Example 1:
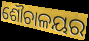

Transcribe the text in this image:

ଶୌଚାଳୟର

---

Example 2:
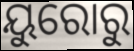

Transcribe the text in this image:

ୟୁରୋରୁ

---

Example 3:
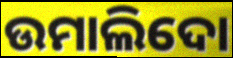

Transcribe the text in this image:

ଉମାଲିଦୋ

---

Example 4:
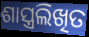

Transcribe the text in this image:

ଶାସ୍ତ୍ରଲିଖିତ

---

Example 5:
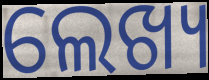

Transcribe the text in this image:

ଲେଖ୍ୟ